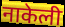
नाकेली